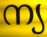
ന്യ